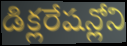
డిక్లరేషన్లోని